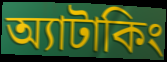
অ্যাটাকিং